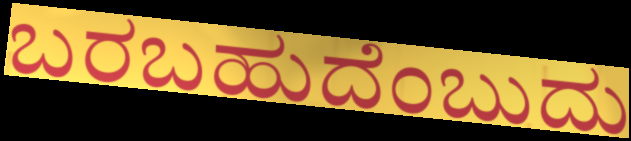
ಬರಬಹುದೆಂಬುದು